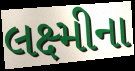
લક્ષ્મીના